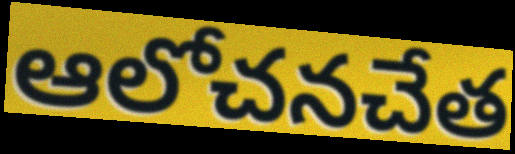
ఆలోచనచేత